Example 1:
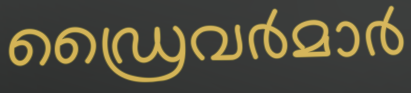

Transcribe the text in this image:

ഡ്രൈവർമാർ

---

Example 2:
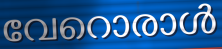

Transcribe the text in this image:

വേറൊരാൾ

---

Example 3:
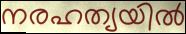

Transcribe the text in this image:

നരഹത്യയിൽ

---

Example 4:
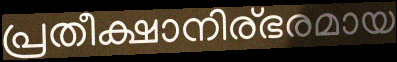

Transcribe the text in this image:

പ്രതീക്ഷാനിര്ഭരമായ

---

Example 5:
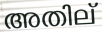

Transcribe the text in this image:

അതില്